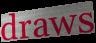
draws